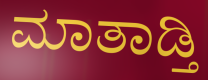
ಮಾತಾಡ್ತಿ